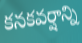
కనకవర్షాన్ని